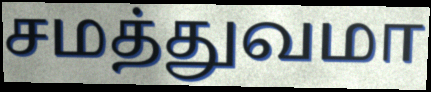
சமத்துவமா